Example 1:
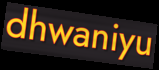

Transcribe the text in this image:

dhwaniyu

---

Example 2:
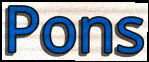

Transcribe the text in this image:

Pons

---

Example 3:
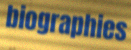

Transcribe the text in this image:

biographies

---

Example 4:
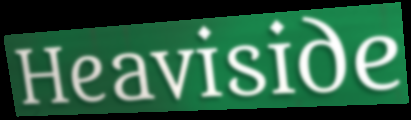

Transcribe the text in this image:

Heaviside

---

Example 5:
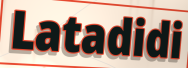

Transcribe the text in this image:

Latadidi